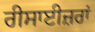
ਰੀਸਾਈਜ਼ਰਾਂ